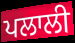
ਪਲਾਲੀ